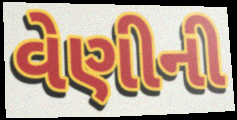
વેણીની